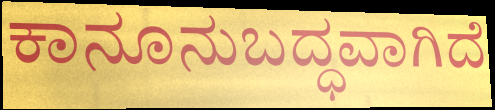
ಕಾನೂನುಬದ್ಧವಾಗಿದೆ